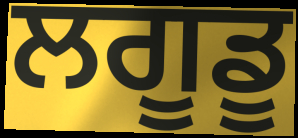
ਲਗੂਡੂ